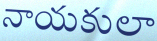
నాయకులా